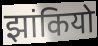
झांकियो